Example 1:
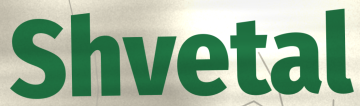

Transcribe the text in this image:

Shvetal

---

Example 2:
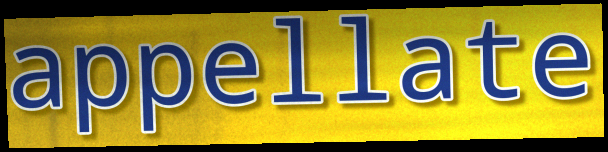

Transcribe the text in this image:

appellate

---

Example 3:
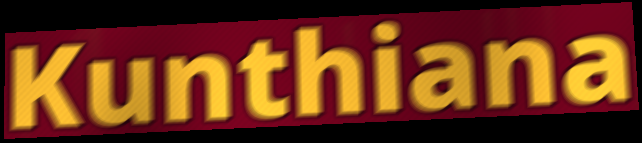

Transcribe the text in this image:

Kunthiana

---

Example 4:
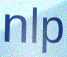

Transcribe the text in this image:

nlp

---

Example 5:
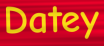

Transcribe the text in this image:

Datey